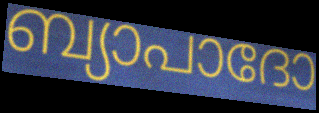
ബ്യാപാദോ